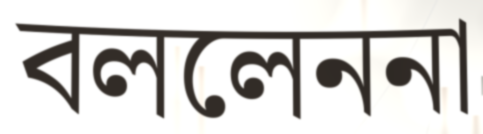
বললেননা